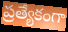
ప్రత్యేకంగా